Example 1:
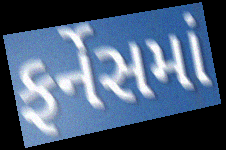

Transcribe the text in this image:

ફર્નેસમાં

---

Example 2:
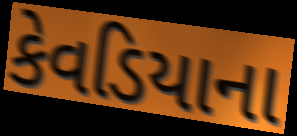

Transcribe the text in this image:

કેવડિયાના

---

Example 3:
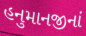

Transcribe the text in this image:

હનુમાનજીનાં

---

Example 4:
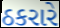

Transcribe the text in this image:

ઠકરારે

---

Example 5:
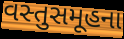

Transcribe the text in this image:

વસ્તુસમૂહના